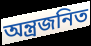
অন্ত্রজনিত